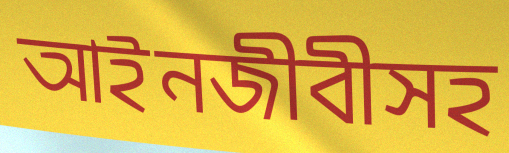
আইনজীবীসহ